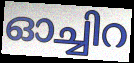
ഓച്ചിറ